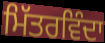
ਮਿੱਤਰਵਿੰਦਾ